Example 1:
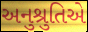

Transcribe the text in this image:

અનુશ્રુતિએ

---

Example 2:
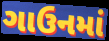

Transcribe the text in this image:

ગાઉનમાં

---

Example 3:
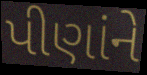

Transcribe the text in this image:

પીણાંને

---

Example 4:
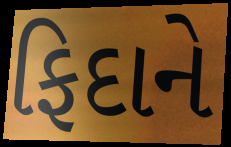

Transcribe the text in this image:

ફિદાને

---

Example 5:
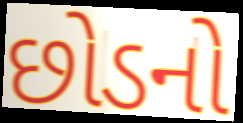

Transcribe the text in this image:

છોડનો